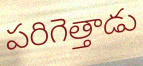
పరిగెత్తాడు